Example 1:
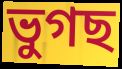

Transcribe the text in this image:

ভুগছ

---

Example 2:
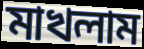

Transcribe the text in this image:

মাখলাম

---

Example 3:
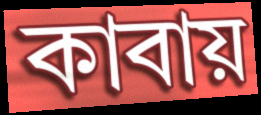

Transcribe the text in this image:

কাবায়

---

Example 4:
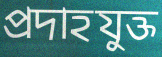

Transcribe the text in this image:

প্রদাহযুক্ত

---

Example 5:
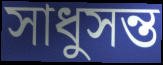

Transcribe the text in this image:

সাধুসন্ত